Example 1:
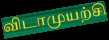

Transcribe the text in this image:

விடாமுயற்சி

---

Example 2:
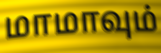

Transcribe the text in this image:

மாமாவும்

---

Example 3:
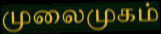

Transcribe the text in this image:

முலைமுகம்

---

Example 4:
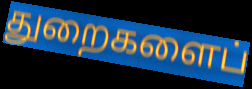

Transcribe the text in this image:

துறைகளைப்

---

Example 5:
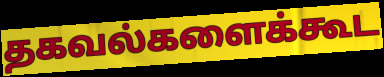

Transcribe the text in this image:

தகவல்களைக்கூட